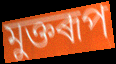
মুক্তৰূপ